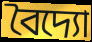
বৈদ্যো